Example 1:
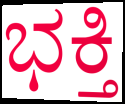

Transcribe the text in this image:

ಭಕ್ತಿ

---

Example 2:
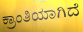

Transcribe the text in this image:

ಕ್ರಾಂತಿಯಾಗಿದೆ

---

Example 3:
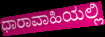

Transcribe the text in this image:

ಧಾರಾವಾಹಿಯಲ್ಲಿ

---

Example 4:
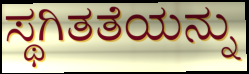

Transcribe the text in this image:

ಸ್ಥಗಿತತೆಯನ್ನು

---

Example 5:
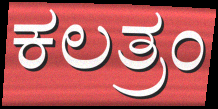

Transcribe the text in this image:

ಕಲತ್ರಂ